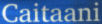
Caitaani